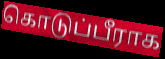
கொடுப்பீராக